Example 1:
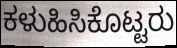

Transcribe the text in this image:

ಕಳುಹಿಸಿಕೊಟ್ಟರು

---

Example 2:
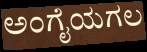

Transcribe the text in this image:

ಅಂಗೈಯಗಲ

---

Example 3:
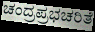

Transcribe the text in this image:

ಚಂದ್ರಪ್ರಭಚರಿತೆ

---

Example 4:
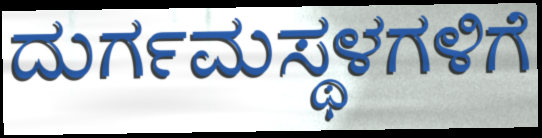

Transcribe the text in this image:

ದುರ್ಗಮಸ್ಥಳಗಳಿಗೆ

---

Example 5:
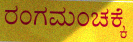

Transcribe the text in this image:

ರಂಗಮಂಚಕ್ಕೆ